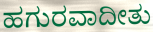
ಹಗುರವಾದೀತು